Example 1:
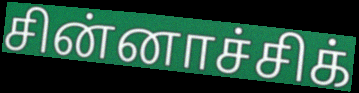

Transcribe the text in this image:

சின்னாச்சிக்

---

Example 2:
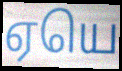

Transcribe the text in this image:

ஏயெ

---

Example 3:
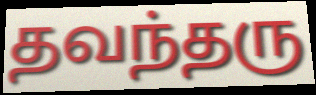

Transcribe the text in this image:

தவந்தரு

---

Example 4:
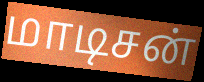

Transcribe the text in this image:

மாடிசன்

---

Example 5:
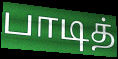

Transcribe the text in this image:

பாடித்